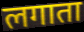
लगाता